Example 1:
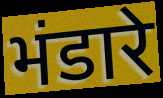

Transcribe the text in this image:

भंडारे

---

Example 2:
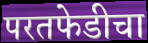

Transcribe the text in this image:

परतफेडीचा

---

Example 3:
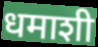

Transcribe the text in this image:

धमाशी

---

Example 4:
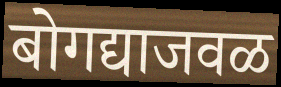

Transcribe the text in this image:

बोगद्याजवळ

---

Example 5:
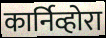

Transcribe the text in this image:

कार्निव्होरा